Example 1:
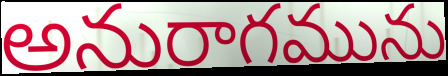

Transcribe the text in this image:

అనురాగమును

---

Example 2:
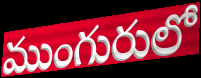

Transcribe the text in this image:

ముంగురులో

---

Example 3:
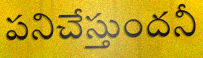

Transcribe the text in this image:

పనిచేస్తుందనీ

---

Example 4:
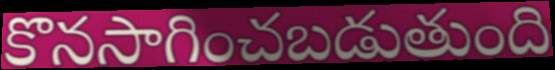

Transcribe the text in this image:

కొనసాగించబడుతుంది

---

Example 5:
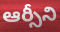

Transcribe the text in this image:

ఆర్సీని